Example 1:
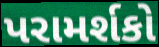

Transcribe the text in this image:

પરામર્શકો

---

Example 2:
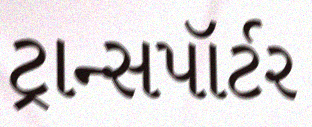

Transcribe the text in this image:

ટ્રાન્સપૉર્ટર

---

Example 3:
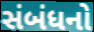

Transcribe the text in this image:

સંબંધનો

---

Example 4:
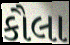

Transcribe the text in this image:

કૌલા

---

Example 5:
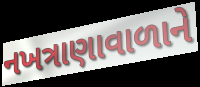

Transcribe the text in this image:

નખત્રાણાવાળાને